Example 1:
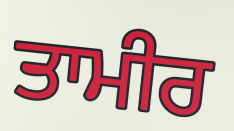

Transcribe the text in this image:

ਤਾਮੀਰ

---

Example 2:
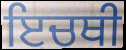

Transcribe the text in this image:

ਇਚਥੀ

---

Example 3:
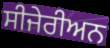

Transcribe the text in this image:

ਸੀਜੇਰੀਅਨ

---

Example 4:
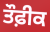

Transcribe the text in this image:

ਤੌਫ਼ੀਕ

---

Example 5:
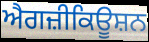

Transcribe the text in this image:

ਐਗਜ਼ੀਕਿਊਸ਼ਨ